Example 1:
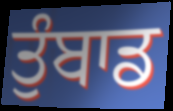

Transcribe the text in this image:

ਤੁੰਬਾਡ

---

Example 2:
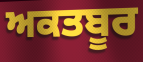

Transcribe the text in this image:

ਅਕਤਬੂਰ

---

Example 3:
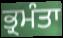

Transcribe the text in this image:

ਭ੍ਰਮੰਤਾ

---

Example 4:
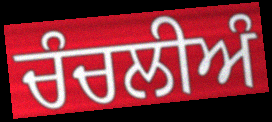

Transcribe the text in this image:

ਚੰਚਲੀਅੰ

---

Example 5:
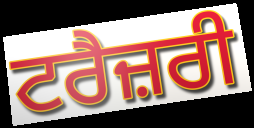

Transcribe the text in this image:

ਟਰੈਜ਼ਰੀ